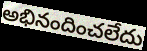
అభినందించలేదు